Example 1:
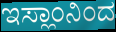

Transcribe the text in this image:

ಇಸ್ಲಾಂನಿಂದ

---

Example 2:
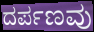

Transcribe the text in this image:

ದರ್ಪಣವು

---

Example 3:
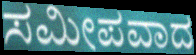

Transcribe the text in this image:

ಸಮೀಪವಾದ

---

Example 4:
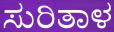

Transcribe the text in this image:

ಸುರಿತಾಳ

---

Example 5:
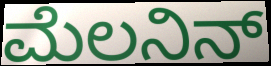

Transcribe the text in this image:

ಮೆಲನಿನ್